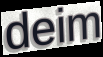
deim